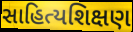
સાહિત્યશિક્ષણ